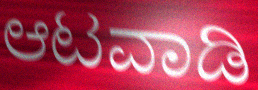
ಆಟವಾಡಿ